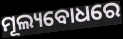
ମୂଲ୍ୟବୋଧରେ